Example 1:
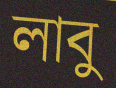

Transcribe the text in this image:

লাবু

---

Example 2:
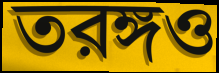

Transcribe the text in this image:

তরঙ্গও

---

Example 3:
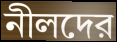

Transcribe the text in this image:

নীলদের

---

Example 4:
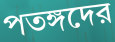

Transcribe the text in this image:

পতঙ্গদের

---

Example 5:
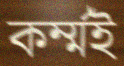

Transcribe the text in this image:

কর্ম্মই